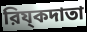
রিয্কদাতা